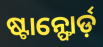
ଷ୍ଟାନ୍ଫୋର୍ଡ଼